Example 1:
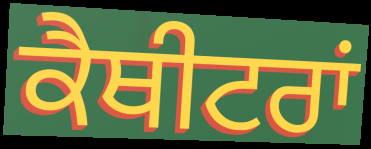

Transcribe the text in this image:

ਕੈਥੀਟਰਾਂ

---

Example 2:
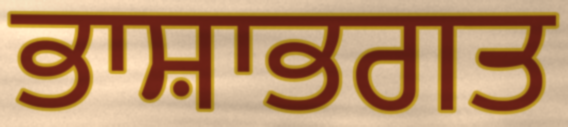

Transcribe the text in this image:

ਭਾਸ਼ਾਭਗਤ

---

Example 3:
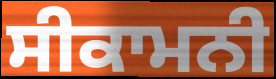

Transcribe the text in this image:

ਸੀਕਾਮਨੀ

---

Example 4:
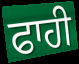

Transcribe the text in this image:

ਫਾਹੀ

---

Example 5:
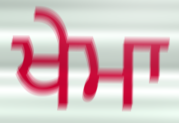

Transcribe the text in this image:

ਖੇਮਾ